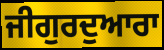
ਜੀਗੁਰਦੁਆਰਾ